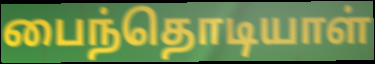
பைந்தொடியாள்